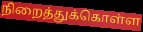
நிறைத்துக்கொள்ள